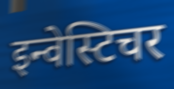
इन्वेस्टिचर